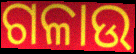
ଗଳାଉ